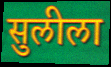
सुलीला